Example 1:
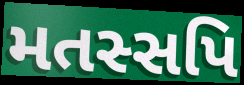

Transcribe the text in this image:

મતસ્સપિ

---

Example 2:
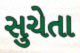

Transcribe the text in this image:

સુચેતા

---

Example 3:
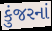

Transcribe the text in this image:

કુંજરનાં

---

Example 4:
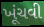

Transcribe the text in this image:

ખૂંચવી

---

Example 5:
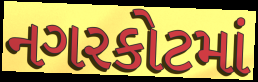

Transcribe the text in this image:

નગરકોટમાં